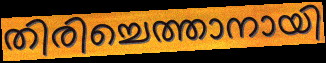
തിരിച്ചെത്താനായി